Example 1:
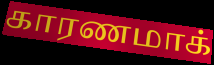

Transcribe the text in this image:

காரணமாக்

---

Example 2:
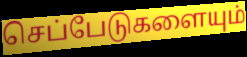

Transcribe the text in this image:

செப்பேடுகளையும்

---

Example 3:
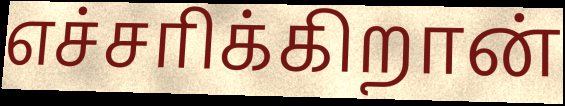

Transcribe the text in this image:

எச்சரிக்கிறான்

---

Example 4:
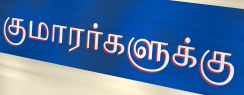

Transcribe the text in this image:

குமாரர்களுக்கு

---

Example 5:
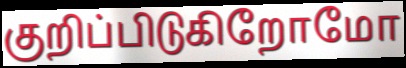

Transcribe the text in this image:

குறிப்பிடுகிறோமோ